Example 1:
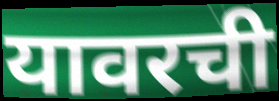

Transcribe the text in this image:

यावरची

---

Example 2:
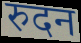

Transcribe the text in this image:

रुदन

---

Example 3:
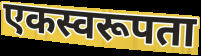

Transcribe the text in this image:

एकस्वरूपता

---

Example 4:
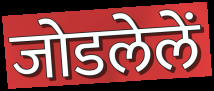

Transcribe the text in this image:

जोडलेलें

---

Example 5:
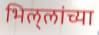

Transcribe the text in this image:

भिल्लांच्या